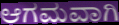
ಆಗಮವಾಗಿ